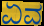
ಏವ